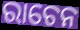
ରାଚେନ